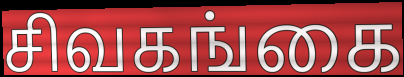
சிவகங்கை